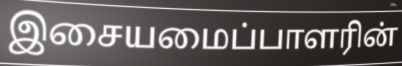
இசையமைப்பாளரின்